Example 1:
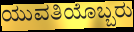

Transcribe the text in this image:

ಯುವತಿಯೊಬ್ಬರು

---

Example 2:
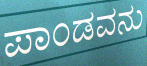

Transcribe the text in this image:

ಪಾಂಡವನು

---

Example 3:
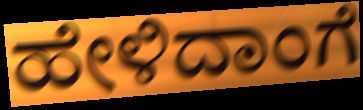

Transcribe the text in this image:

ಹೇಳಿದಾಂಗೆ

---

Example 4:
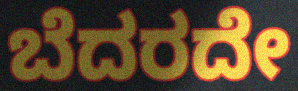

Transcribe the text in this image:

ಬೆದರದೇ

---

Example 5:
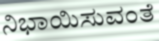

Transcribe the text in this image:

ನಿಭಾಯಿಸುವಂತೆ